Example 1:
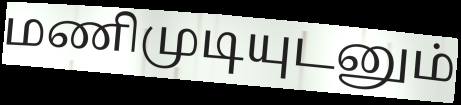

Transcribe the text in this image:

மணிமுடியுடனும்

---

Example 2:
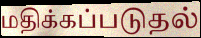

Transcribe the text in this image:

மதிக்கப்படுதல்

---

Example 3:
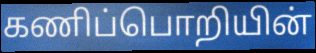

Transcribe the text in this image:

கணிப்பொறியின்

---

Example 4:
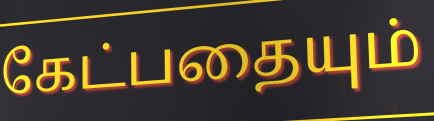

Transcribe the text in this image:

கேட்பதையும்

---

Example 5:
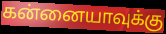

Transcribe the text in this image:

கன்னையாவுக்கு